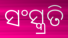
ସଂସ୍କ୍ରତି